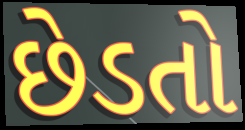
છેડતો